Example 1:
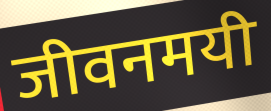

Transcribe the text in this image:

जीवनमयी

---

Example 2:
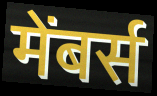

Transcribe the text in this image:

मेंबर्स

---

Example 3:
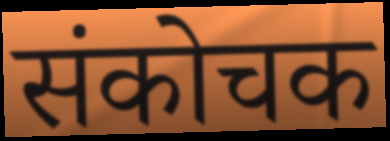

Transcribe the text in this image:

संकोचक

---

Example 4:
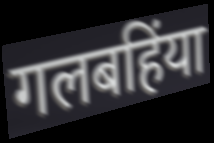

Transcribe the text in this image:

गलबहिंया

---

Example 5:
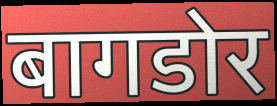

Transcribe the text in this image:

बागडोर